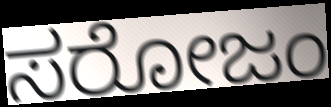
ಸರೋಜಂ